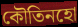
কৌতিনহো